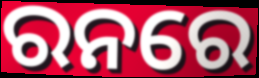
ରନରେ